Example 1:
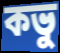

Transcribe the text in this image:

কভু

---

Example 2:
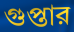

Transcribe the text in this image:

গুপ্তার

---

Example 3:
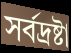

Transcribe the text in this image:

সর্বদ্রষ্টা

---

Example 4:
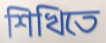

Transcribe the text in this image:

শিখিতে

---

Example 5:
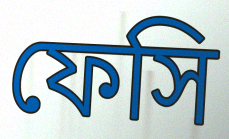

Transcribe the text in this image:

ফেসি